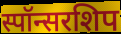
स्पॉन्सरशिप